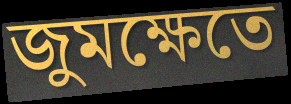
জুমক্ষেতে